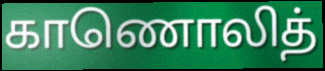
காணொலித்